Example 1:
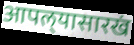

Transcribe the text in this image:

आपल्यासारखं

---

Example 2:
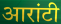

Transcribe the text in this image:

आरांटी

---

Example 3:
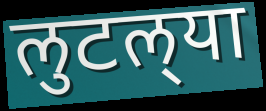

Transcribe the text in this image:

लुटल्या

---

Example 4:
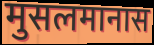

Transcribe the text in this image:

मुसलमानास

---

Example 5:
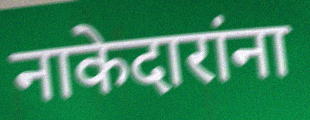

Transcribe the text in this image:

नाकेदारांना